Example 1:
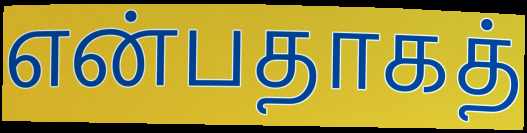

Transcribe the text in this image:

என்பதாகத்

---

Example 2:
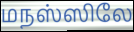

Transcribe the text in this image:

மநஸ்ஸிலே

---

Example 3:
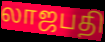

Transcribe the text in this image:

லாஜபதி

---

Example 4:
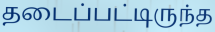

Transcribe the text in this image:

தடைப்பட்டிருந்த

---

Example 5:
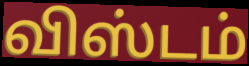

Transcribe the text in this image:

விஸ்டம்